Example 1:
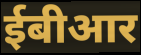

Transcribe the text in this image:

ईबीआर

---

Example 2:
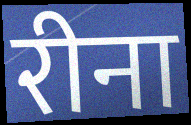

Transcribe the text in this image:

रीना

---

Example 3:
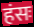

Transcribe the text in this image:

हंसः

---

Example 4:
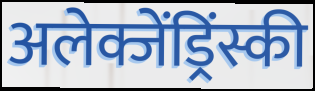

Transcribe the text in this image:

अलेक्जेंड्रिंस्की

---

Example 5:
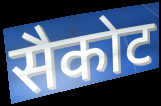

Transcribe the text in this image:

सैकोट